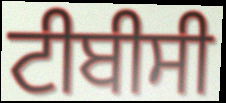
ਟੀਬੀਸੀ